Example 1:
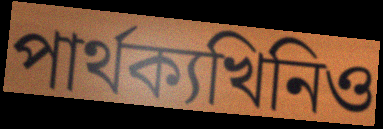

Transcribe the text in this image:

পাৰ্থক্যখিনিও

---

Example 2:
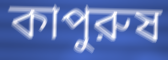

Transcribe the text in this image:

কাপুৰুষ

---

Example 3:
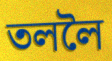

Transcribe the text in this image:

তললৈ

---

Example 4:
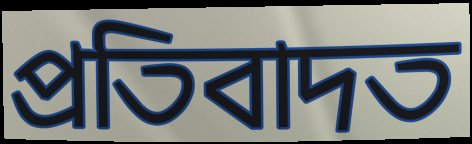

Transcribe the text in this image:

প্ৰতিবাদত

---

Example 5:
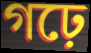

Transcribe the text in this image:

গঢ়ে